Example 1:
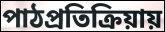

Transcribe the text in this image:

পাঠপ্রতিক্রিয়ায়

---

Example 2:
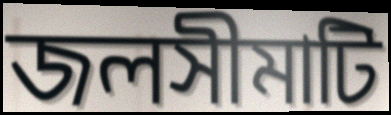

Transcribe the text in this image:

জলসীমাটি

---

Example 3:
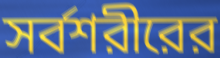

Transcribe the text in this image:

সর্বশরীরের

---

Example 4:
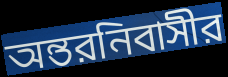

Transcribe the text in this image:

অন্তরনিবাসীর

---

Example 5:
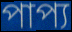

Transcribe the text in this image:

পাপ্য